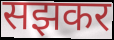
सझकर